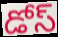
డోస్